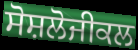
ਸੋਸ਼ਲੋਜੀਕਲ